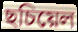
ছচিয়েল